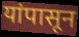
यांपासून